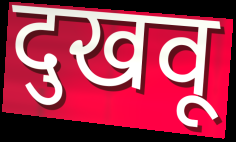
दुखवू